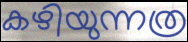
കഴിയുന്നത്ര